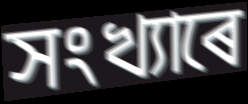
সংখ্যাৰে